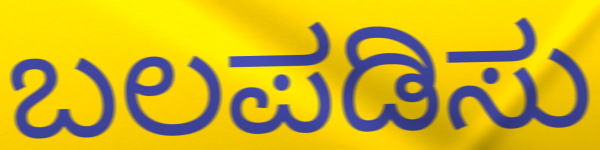
ಬಲಪಡಿಸು